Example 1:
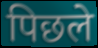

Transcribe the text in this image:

पिछले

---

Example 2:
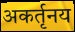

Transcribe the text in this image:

अकर्तृनय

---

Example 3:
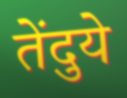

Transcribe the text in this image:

तेंदुये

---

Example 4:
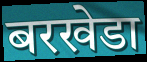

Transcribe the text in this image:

बरखेडा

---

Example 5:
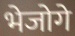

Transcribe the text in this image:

भेजोगे